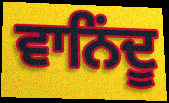
ਵਾਨਿਂਦੂ